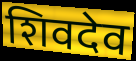
शिवदेव